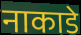
नाकाडे